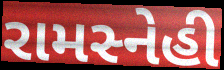
રામસ્નેહી